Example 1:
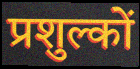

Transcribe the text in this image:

प्रशुल्कों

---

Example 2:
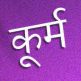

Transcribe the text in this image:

कूर्म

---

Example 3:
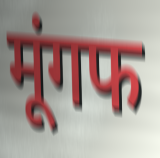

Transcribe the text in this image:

मूंगफ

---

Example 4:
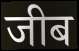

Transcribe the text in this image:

जीब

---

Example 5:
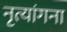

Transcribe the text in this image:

नृत्यांगना